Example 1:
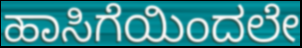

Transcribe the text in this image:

ಹಾಸಿಗೆಯಿಂದಲೇ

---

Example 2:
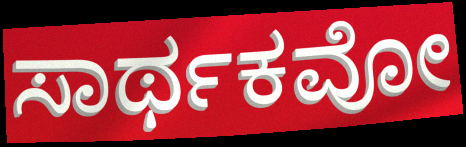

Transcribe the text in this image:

ಸಾರ್ಥಕವೋ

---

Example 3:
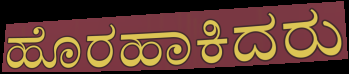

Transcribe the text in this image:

ಹೊರಹಾಕಿದರು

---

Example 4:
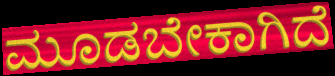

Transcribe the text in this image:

ಮೂಡಬೇಕಾಗಿದೆ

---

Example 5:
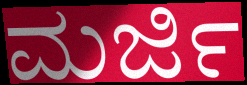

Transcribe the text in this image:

ಮರ್ಜಿ